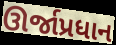
ઊર્જાપ્રધાન